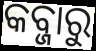
କବ୍ଜାରୁ